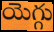
యెగ్గు